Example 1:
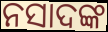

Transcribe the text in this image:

ନସାଦଙ୍କ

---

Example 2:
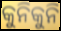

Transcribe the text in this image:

କୁନିକୁନି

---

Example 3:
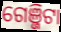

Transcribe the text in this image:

ଗେଞ୍ଜିଟା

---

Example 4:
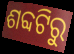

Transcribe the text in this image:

ଶବ୍ଦଟିରୁ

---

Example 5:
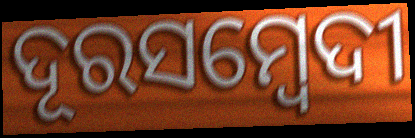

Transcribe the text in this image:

ଦୂରସମ୍ବେଦୀ